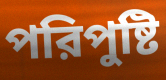
পরিপুষ্টি